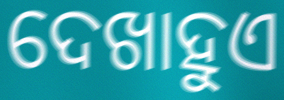
ଦେଖାହୁଏ